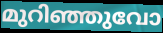
മുറിഞ്ഞുവോ